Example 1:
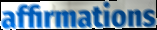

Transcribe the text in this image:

affirmations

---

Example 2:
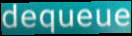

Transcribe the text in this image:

dequeue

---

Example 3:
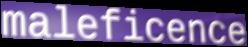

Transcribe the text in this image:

maleficence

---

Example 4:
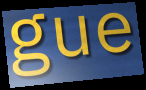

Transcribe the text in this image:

gue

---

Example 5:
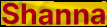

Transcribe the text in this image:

Shanna